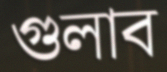
গুলাব